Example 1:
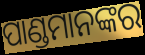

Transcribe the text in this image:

ପାଣ୍ଡମାନଙ୍କର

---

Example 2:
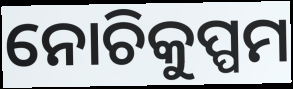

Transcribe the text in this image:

ନୋଚିକୁପ୍ପମ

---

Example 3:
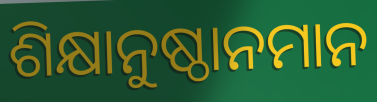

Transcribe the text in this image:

ଶିକ୍ଷାନୁଷ୍ଠାନମାନ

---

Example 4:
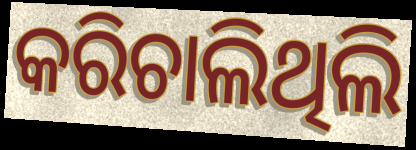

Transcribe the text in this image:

କରିଚାଲିଥିଲି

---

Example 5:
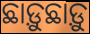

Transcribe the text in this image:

ଛାଡ଼ୁଛାଡ଼ୁ